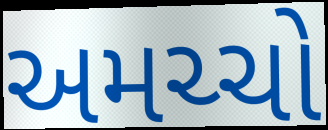
અમચ્ચો